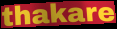
thakare